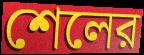
শেলের